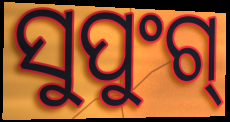
ସୁପୁଂଗ୍